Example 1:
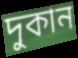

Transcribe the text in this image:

দুকান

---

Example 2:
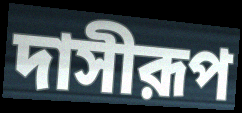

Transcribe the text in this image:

দাসীরূপ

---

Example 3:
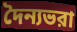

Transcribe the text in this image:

দৈন্যভরা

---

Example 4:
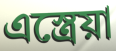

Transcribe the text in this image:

এস্ত্রেয়া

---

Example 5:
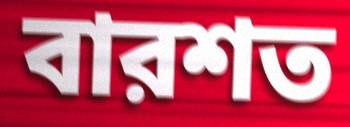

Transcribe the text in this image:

বারশত